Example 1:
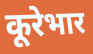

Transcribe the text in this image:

कूरेभार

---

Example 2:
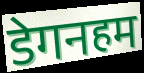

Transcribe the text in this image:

डेगनहम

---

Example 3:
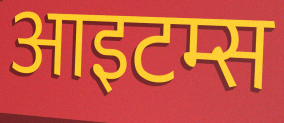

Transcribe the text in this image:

आइटम्‍स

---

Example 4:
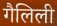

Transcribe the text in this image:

गैलिली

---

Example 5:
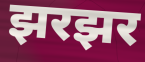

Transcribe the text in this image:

झरझर